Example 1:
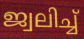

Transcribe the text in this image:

ജ്വലിച്ച്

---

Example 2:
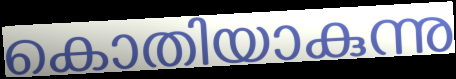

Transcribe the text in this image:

കൊതിയാകുന്നു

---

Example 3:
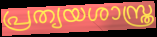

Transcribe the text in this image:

പ്രത്യയശാസ്ത്ര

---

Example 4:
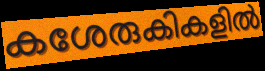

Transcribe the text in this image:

കശേരുകികളിൽ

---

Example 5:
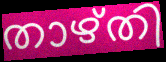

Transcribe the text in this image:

താഴ്തി